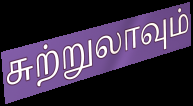
சுற்றுலாவும்